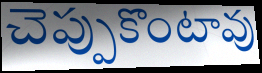
చెప్పుకొంటావు